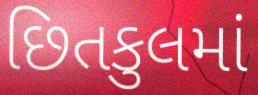
છિતકુલમાં